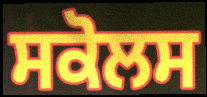
ਸਕੋਲਸ